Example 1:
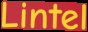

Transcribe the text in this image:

Lintel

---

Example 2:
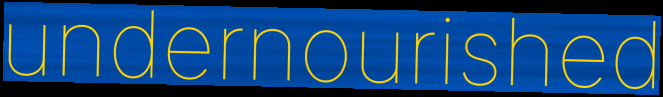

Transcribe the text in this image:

undernourished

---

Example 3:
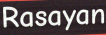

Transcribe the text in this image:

Rasayan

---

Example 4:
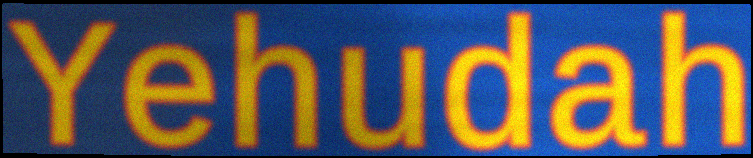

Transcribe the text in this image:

Yehudah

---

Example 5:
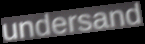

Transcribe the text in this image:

undersand